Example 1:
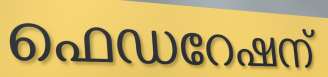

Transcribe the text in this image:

ഫെഡറേഷന്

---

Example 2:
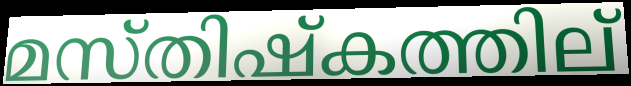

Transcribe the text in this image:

മസ്തിഷ്കത്തില്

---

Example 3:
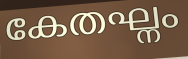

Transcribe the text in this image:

കേതഘ്നം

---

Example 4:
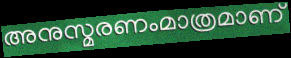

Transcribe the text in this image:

അനുസ്മരണംമാത്രമാണ്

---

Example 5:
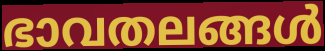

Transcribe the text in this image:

ഭാവതലങ്ങൾ